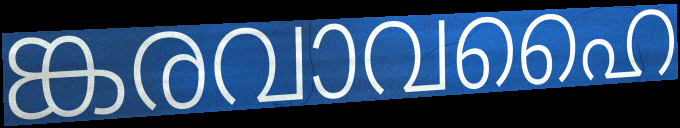
ങ്കരവാവഹൈ